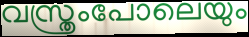
വസ്ത്രംപോലെയും